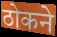
ठोकने